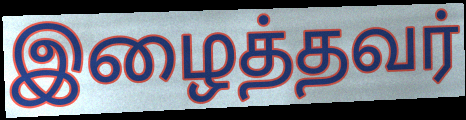
இழைத்தவர்